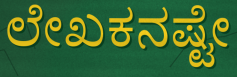
ಲೇಖಕನಷ್ಟೇ